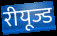
रीयूज्ड